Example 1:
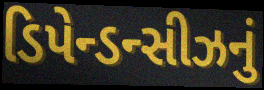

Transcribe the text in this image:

ડિપેન્ડન્સીઝનું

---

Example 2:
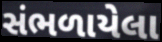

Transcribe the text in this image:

સંભળાયેલા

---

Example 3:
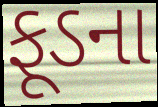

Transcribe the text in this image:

ફૂડના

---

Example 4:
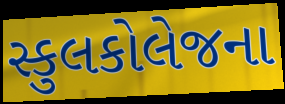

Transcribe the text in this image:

સ્કુલકોલેજના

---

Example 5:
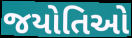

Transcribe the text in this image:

જયોતિઓ